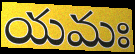
యమః